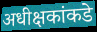
अधीक्षकांकडे